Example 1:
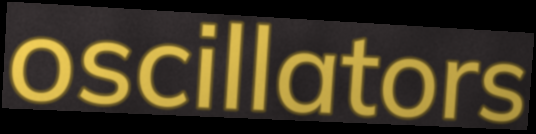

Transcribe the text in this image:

oscillators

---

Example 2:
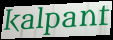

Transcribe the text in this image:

kalpant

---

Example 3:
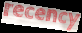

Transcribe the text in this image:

recency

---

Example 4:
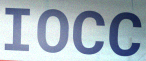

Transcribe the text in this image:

IOCC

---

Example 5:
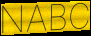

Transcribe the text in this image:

NABC